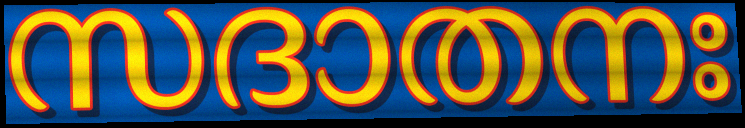
സദാതനഃ